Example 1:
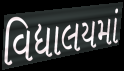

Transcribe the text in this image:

વિદ્યાલયમાં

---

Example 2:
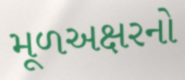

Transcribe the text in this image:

મૂળઅક્ષરનો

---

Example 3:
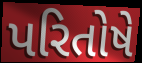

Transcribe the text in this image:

પરિતોષે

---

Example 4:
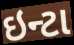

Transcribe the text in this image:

ઇન્ટા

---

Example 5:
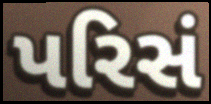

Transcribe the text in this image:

પરિસં